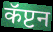
कॅप्टन